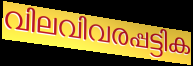
വിലവിവരപ്പട്ടിക